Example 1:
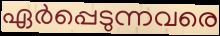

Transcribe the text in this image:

ഏർപ്പെടുന്നവരെ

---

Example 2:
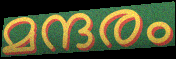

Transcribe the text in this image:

മന്ദരം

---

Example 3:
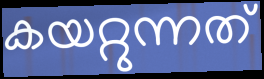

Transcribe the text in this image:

കയറ്റുന്നത്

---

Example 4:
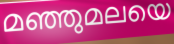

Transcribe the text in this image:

മഞ്ഞുമലയെ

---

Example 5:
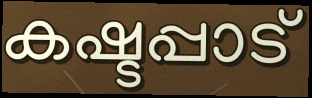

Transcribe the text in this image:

കഷ്ടപ്പാട്